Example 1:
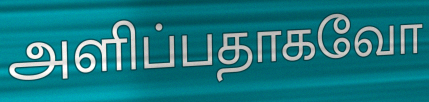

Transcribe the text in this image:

அளிப்பதாகவோ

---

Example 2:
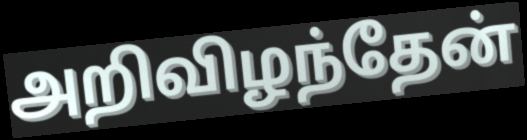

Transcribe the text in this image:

அறிவிழந்தேன்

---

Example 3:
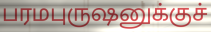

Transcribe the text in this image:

பரமபுருஷனுக்குச்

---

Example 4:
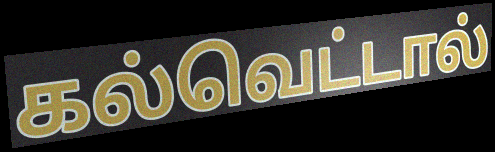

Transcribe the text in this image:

கல்வெட்டால்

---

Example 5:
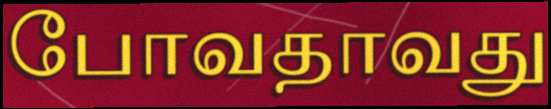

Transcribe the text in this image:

போவதாவது